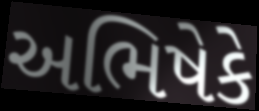
અભિષેકે